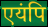
एयंपि